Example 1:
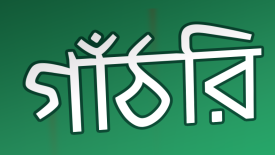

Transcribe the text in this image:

গাঁঠরি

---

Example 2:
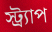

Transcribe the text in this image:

স্ট্র্যাপ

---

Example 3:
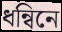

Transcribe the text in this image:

ধন্বিনে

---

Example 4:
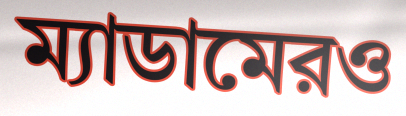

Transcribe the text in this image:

ম্যাডামেরও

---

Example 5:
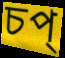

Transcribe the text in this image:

চপ্